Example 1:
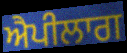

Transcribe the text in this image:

ਐਪੀਲਾਗ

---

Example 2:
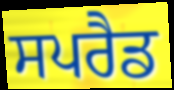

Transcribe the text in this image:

ਸਪਰੈਡ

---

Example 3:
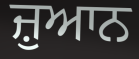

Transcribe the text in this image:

ਜ਼ੁਆਨ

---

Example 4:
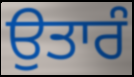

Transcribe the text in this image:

ਉਤਾਰੰ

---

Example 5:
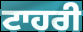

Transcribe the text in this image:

ਟਾਹਰੀ